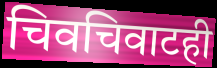
चिवचिवाटही